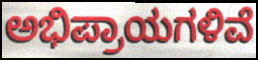
ಅಭಿಪ್ರಾಯಗಳಿವೆ